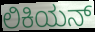
ಲಿಕಿಯನ್